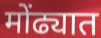
मोंढ्यात